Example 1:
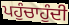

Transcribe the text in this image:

ਪਹੁੰਚਾਹੁੰਦੀ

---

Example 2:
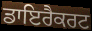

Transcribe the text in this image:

ਡਾਇਰੈਕਰਟ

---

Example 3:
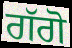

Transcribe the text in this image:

ਗੱਗੋ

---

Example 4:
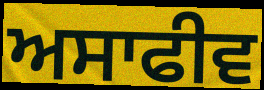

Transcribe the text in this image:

ਅਸਾਫੀਵ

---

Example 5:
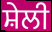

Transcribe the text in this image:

ਸ਼ੇਲੀ